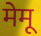
मेमू